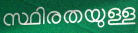
സ്ഥിരതയുള്ള